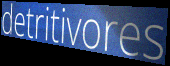
detritivores